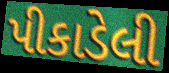
પીકાડેલી